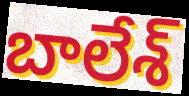
బాలేశ్